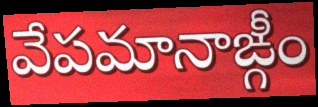
వేపమానాఙ్గీం